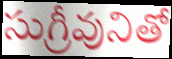
సుగ్రీవునితో